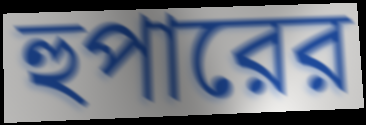
হুপারের